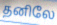
தனிலே